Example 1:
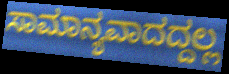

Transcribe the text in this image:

ಸಾಮಾನ್ಯವಾದದ್ದಲ್ಲ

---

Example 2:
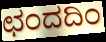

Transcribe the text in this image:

ಛಂದದಿಂ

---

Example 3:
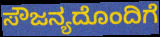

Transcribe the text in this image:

ಸೌಜನ್ಯದೊಂದಿಗೆ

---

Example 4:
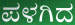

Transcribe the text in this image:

ಪಳಗಿದ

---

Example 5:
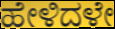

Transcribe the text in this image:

ಹೇಳಿದಳೇ